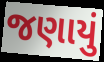
જણાયું